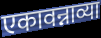
एकावन्नाव्या